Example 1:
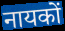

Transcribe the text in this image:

नायकों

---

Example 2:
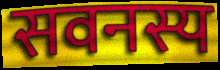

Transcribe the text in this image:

सवनस्य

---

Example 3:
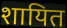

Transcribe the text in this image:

शायित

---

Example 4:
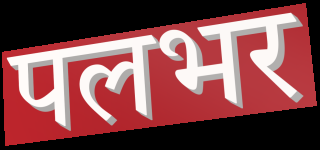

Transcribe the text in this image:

पलभर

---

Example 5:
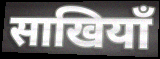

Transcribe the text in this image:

साखियाँ